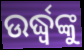
ଉର୍ଦ୍ଧ୍ୱଙ୍କୁ